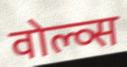
वोल्व्स